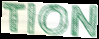
TION